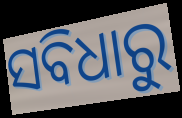
ସବିଧାରୁ